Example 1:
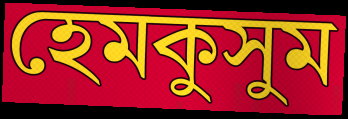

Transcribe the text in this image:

হেমকুসুম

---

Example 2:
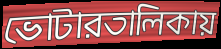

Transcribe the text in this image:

ভোটারতালিকায়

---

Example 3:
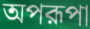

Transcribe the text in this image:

অপরূপা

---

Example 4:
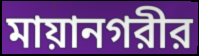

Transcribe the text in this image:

মায়ানগরীর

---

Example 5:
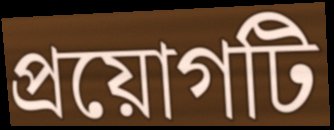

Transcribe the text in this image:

প্রয়োগটি